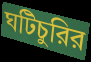
ঘটিচুরির